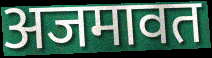
अजमावत